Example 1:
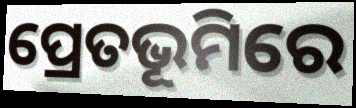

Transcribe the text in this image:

ପ୍ରେତଭୂମିରେ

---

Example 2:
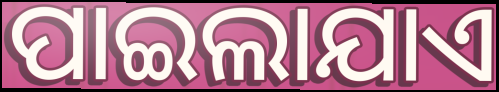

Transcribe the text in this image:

ପାଇଲାଯାଏ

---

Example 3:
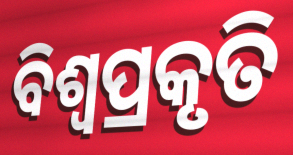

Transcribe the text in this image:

ବିଶ୍ଵପ୍ରକୃତି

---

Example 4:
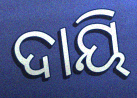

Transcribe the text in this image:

ଦାୟି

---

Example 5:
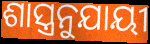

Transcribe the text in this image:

ଶାସ୍ତ୍ରନୁଯାୟୀ